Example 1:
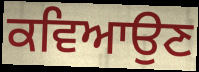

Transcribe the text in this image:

ਕਵਿਆਉਣ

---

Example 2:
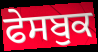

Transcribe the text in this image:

ਫੇਸਬੁਕ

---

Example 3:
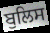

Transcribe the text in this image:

ਬੁਲਿਸ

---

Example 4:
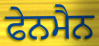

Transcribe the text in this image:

ਫੇਨਮੈਨ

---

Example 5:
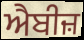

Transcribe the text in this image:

ਐਬੀਜ਼